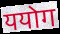
ययोग